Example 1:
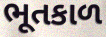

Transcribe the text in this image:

ભૂતકાળ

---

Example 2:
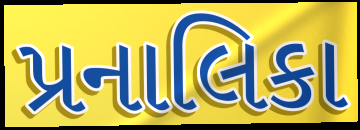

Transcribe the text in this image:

પ્રનાલિકા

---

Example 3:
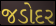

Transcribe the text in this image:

જડોદર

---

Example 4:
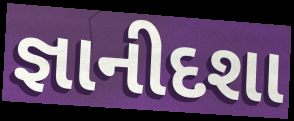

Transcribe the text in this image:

જ્ઞાનીદશા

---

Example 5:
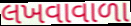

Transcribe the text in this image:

લખવાવાળા